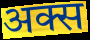
अक्स